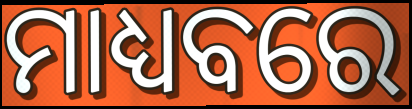
ମାଧ୍ୟବରେ